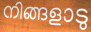
നിങ്ങളാടു